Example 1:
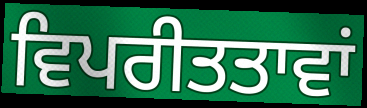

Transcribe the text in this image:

ਵਿਪਰੀਤਤਾਵਾਂ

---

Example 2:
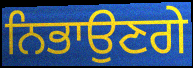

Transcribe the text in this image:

ਨਿਭਾਉਣਗੇ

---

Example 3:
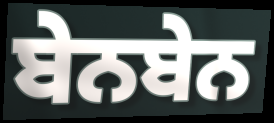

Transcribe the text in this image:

ਬੇਨਬੇਨ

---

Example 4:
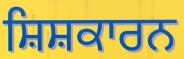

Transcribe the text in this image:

ਸ਼ਿਸ਼ਕਾਰਨ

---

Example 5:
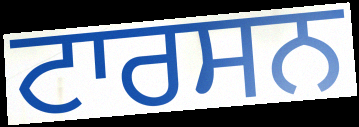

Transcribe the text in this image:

ਟਾਰਸਨ